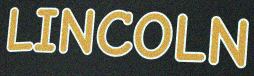
LINCOLN